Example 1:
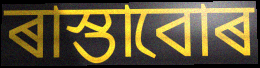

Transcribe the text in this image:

ৰাস্তাবোৰ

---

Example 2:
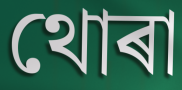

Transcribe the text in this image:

থোৰা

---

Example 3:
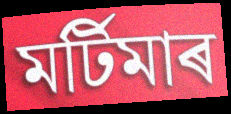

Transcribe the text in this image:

মৰ্টিমাৰ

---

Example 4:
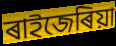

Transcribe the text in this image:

ৰাইজেৰিয়া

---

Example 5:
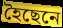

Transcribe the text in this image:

হৈছেনে